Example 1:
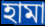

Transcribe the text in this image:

হামা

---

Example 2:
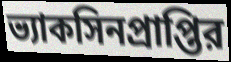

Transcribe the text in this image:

ভ্যাকসিনপ্রাপ্তির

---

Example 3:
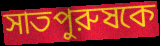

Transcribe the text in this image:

সাতপুরুষকে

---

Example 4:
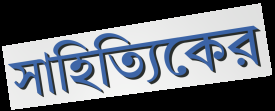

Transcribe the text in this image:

সাহিত্যিকের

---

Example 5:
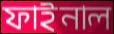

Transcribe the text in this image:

ফাইনাল